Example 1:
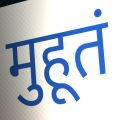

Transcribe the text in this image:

मुहूतं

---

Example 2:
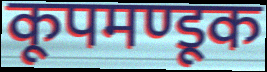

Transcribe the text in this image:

कूपमण्डूक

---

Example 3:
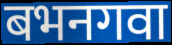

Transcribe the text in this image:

बभनगवा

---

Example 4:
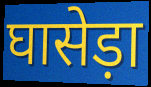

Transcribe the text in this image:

घासेड़ा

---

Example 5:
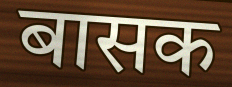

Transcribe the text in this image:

बासक